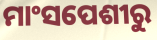
ମାଂସପେଶୀରୁ